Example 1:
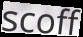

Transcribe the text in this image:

scoff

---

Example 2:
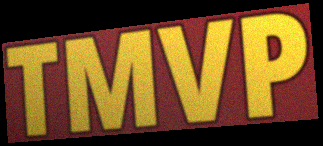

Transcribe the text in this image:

TMVP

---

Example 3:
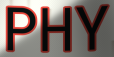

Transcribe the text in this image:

PHY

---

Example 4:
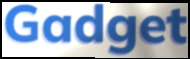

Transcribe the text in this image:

Gadget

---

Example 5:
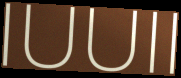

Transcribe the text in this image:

IUUII